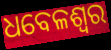
ଧବେଳଶ୍ୱର